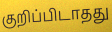
குறிப்பிடாதது